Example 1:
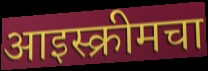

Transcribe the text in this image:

आइस्क्रीमचा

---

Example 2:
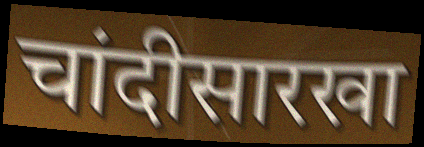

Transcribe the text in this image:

चांदीसारखा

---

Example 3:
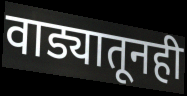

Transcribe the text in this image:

वाड्यातूनही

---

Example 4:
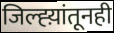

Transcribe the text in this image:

जिल्ह्य़ांतूनही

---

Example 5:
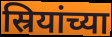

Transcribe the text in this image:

स्रियांच्या